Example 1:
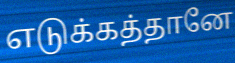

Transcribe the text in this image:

எடுக்கத்தானே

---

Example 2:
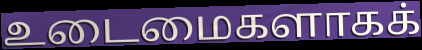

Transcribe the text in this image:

உடைமைகளாகக்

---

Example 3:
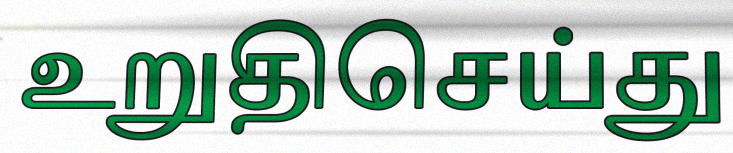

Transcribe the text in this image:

உறுதிசெய்து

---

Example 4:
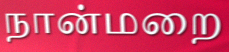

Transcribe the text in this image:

நான்மறை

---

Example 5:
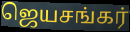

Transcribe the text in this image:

ஜெயசங்கர்